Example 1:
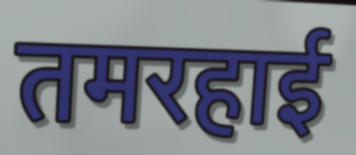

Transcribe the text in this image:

तमरहाई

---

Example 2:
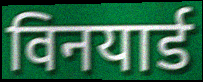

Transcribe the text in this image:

विनयार्ड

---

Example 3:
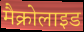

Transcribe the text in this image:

मैक्रोलाइड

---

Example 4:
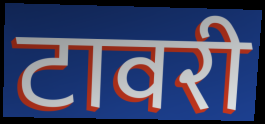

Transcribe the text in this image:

टावरी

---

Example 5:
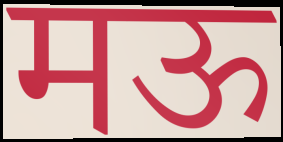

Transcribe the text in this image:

मऊ